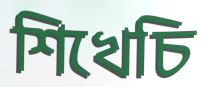
শিখেচি